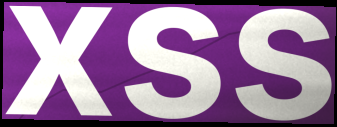
xss